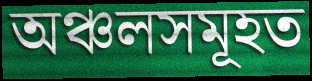
অঞ্চলসমূহত